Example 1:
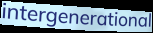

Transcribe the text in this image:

intergenerational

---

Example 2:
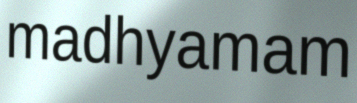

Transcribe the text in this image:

madhyamam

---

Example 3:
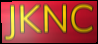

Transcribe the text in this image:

JKNC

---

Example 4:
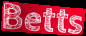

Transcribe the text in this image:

Betts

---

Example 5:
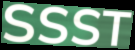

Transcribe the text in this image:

SSST